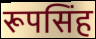
रूपसिंह